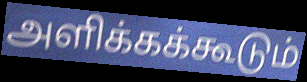
அளிக்கக்கூடும்